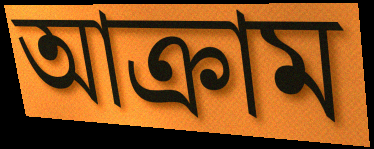
আক্রাম